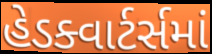
હેડક્વાર્ટર્સમાં